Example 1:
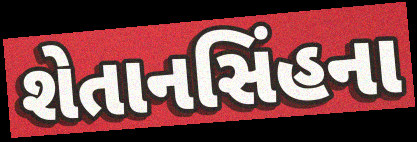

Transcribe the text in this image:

શેતાનસિંહના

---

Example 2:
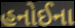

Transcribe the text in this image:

હનોઈના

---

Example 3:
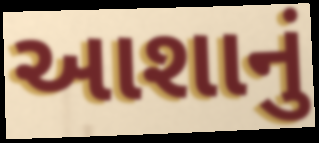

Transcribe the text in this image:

આશાનું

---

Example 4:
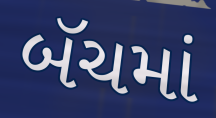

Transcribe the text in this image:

બૅચમાં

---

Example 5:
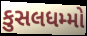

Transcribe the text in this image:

કુસલધમ્મો